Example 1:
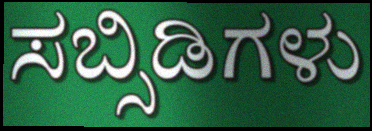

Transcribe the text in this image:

ಸಬ್ಸಿಡಿಗಳು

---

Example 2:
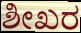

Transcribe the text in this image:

ಶೀಖರ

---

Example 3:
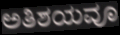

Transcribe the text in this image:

ಅತಿಶಯವೂ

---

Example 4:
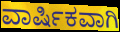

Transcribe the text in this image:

ವಾರ್ಷಿಕವಾಗಿ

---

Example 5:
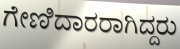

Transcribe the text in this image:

ಗೇಣಿದಾರರಾಗಿದ್ದರು